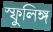
স্ফুলিঙ্গ